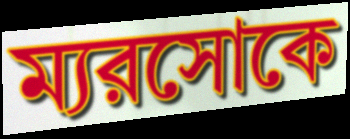
ম্যরসোকে